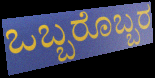
ಒಬ್ಬರೊಬ್ಬರ